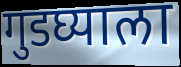
गुडघ्याला